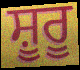
ਸ਼ੂਰੂ